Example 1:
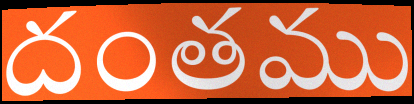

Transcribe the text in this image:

దంతము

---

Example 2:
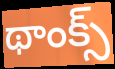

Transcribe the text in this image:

థాంక్స్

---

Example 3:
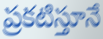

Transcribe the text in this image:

ప్రకటిస్తూనే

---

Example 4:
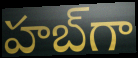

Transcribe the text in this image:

హబ్‌గా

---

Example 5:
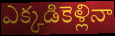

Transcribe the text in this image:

ఎక్కడికెళ్లినా